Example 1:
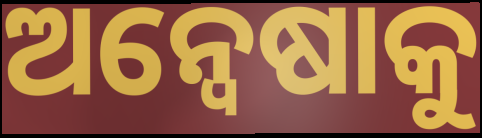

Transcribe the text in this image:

ଅନ୍ୱେଷାକୁ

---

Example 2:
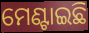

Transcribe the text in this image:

ମେଣ୍ଟାଇଛି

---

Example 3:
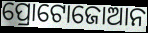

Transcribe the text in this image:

ପ୍ରୋଟୋଜୋଆନ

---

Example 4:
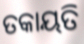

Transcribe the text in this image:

ତକାୟତି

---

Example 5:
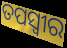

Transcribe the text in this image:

ତପସ୍ଵୀର